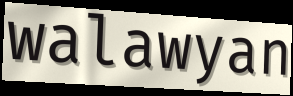
walawyan